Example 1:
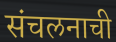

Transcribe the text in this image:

संचलनाची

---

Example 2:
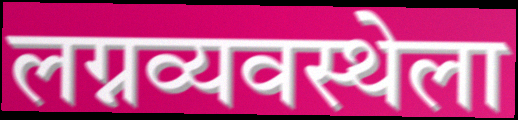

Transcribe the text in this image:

लग्नव्यवस्थेला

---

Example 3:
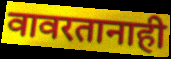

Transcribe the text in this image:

वावरतानाही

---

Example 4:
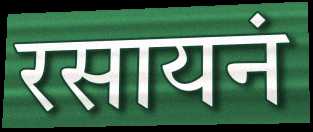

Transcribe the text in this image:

रसायनं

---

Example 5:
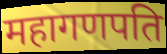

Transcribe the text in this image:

महागणपति